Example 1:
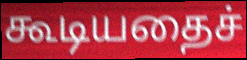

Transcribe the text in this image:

கூடியதைச்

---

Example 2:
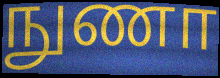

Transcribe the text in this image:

நுணா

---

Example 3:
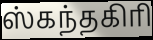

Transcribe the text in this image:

ஸ்கந்தகிரி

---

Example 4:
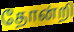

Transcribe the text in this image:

தோன்றி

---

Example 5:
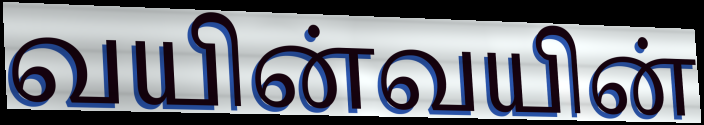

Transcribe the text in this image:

வயின்வயின்